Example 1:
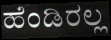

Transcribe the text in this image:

ಹೆಂಡಿರಲ್ಲ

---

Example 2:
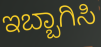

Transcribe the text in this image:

ಇಬ್ಬಾಗಿಸಿ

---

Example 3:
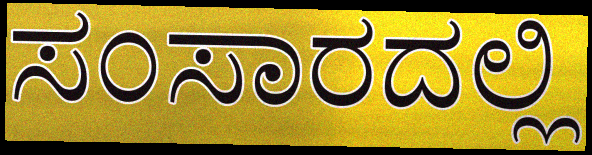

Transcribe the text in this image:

ಸಂಸಾರದಲ್ಲಿ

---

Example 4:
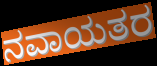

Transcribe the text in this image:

ನವಾಯತರ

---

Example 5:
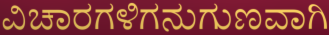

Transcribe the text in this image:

ವಿಚಾರಗಳಿಗನುಗುಣವಾಗಿ